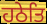
ਹਠੇਤਿ